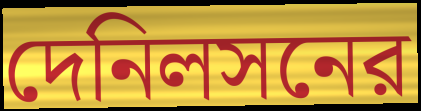
দেনিলসনের